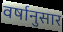
वर्षानुसार